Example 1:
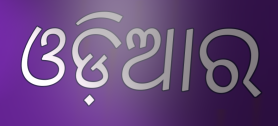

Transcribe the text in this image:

ଓଡ଼ିଆର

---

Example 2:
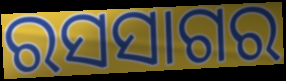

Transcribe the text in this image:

ରସସାଗର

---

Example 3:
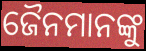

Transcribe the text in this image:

ଜୈନମାନଙ୍କୁ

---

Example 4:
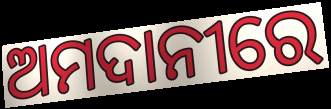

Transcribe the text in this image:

ଅମଦାନୀରେ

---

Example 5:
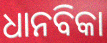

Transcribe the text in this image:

ଧାନବିକା